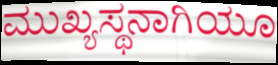
ಮುಖ್ಯಸ್ಥನಾಗಿಯೂ